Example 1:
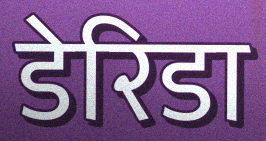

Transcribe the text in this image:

डेरिडा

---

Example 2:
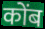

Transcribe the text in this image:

कोंब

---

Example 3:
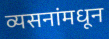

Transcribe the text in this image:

व्यसनांमधून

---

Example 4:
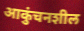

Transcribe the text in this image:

आकुंचनशील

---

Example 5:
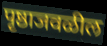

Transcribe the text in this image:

पृष्ठाजवळील